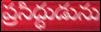
ప్రసిద్ధుడును